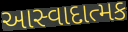
આસ્વાદાત્મક